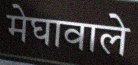
मेघावाले